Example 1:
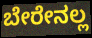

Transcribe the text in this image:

ಬೇರೇನಲ್ಲ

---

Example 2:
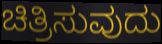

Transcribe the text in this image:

ಚಿತ್ರಿಸುವುದು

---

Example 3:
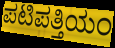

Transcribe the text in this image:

ಪಟಿಪತ್ತಿಯಂ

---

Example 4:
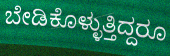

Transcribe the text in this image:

ಬೇಡಿಕೊಳ್ಳುತ್ತಿದ್ದರೂ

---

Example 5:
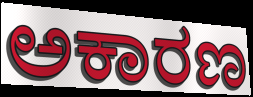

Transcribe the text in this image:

ಅಕಾರಣ